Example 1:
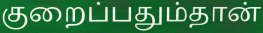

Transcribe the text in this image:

குறைப்பதும்தான்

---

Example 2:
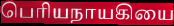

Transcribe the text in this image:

பெரியநாயகியை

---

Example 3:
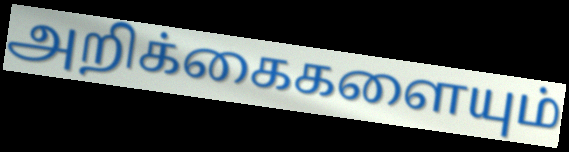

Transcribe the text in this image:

அறிக்கைகளையும்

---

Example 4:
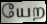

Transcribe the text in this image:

யேற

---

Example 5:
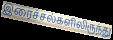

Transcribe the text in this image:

இரைச்சல்களிலிருந்து